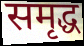
समृद्ध